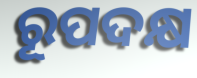
ରୂପଦକ୍ଷ